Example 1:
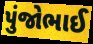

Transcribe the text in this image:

પુંજોભાઈ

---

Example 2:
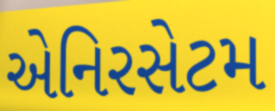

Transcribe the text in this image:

એનિરસેટમ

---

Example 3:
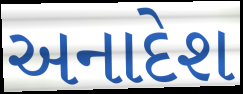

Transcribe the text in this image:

અનાદેશ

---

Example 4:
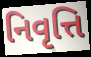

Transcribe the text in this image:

નિવૃત્તિ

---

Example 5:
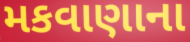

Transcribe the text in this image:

મકવાણાના